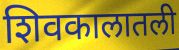
शिवकालातली